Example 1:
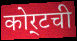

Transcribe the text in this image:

कोर्टची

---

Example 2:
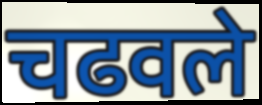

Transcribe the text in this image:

चढवले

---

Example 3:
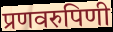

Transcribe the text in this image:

प्रणवरुपिणी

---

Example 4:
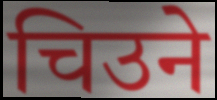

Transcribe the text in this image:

चिउने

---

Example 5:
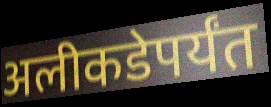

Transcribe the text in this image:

अलीकडेपर्यंत